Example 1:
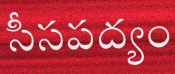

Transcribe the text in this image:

సీసపద్యం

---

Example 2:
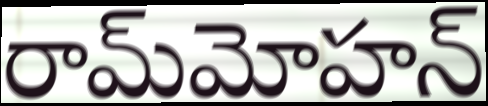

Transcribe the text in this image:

రామ్‌మోహన్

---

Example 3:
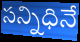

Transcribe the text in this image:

సన్నిధినే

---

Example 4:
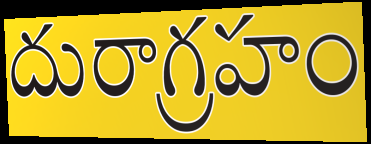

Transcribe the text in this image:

దురాగ్రహం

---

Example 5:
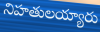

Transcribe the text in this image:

నిహతులయ్యారు